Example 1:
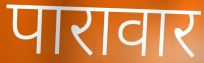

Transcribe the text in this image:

पारावार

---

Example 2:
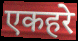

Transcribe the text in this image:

एकहरे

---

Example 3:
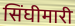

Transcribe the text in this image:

सिंघीमारी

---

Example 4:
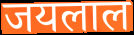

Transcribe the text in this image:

जयलाल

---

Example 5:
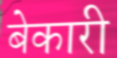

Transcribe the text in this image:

बेकारी